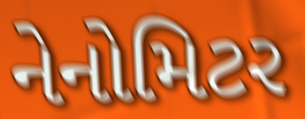
નેનોમિટર